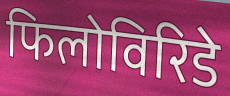
फिलोविरिडे